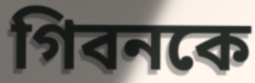
গিবনকে